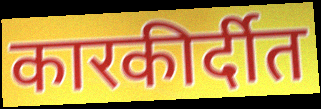
कारकीर्दीत